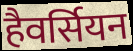
हैवर्सियन